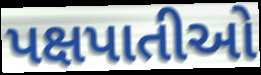
પક્ષપાતીઓ